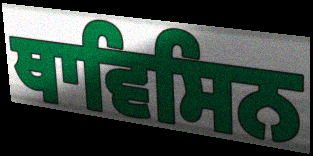
ਥਾਵਿਸਿਨ